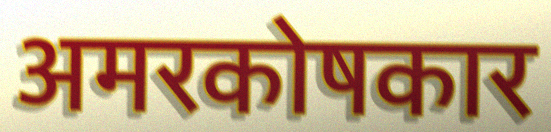
अमरकोषकार